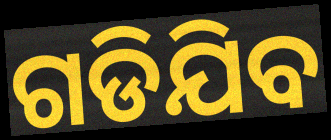
ଗଡିଯିବ